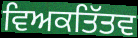
ਵਿਅਕਤਿੱਤਵ